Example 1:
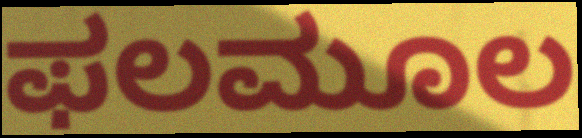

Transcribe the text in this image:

ಫಲಮೂಲ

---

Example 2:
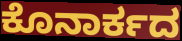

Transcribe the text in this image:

ಕೊನಾರ್ಕದ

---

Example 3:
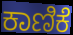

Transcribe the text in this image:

ಕಾಣಿಕೆ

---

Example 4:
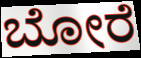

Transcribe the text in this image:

ಬೋರೆ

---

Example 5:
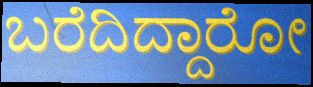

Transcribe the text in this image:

ಬರೆದಿದ್ದಾರೋ